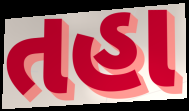
તહા